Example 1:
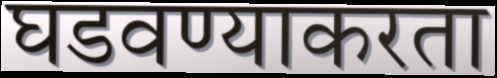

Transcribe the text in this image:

घडवण्याकरता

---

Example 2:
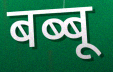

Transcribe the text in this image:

बब्बू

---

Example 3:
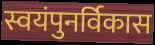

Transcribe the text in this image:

स्वयंपुनर्विकास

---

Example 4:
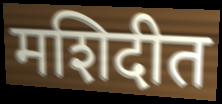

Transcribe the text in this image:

मशिदीत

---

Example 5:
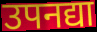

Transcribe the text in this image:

उपनद्या